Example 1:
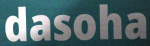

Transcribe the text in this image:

dasoha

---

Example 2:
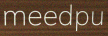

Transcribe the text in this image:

meedpu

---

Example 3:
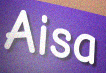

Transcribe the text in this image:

Aisa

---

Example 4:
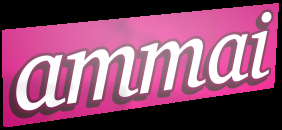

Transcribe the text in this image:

ammai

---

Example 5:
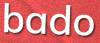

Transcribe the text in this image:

bado